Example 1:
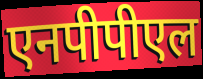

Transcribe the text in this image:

एनपीपीएल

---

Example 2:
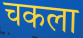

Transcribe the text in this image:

चकला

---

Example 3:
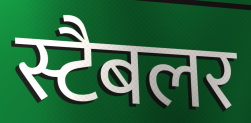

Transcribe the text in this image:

स्टैबलर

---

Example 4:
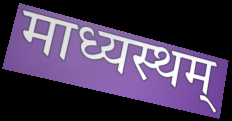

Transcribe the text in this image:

माध्यस्थम्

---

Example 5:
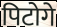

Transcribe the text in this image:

पिटोगे